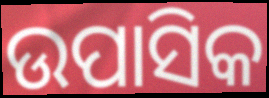
ଉପାସିକ